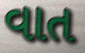
વાત